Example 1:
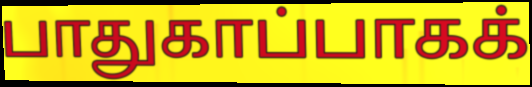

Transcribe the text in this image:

பாதுகாப்பாகக்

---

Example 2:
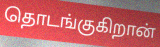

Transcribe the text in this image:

தொடங்குகிறான்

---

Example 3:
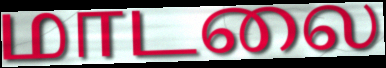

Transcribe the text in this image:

மாடலை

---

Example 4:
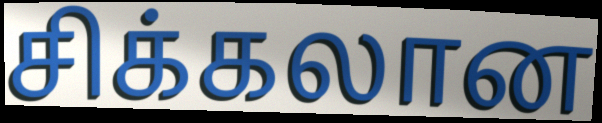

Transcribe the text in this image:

சிக்கலான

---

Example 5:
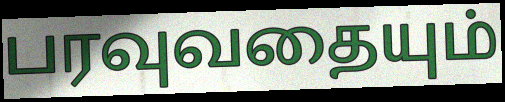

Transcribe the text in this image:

பரவுவதையும்